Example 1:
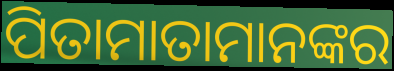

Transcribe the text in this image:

ପିତାମାତାମାନଙ୍କର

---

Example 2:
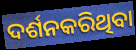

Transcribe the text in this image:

ଦର୍ଶନକରିଥିବା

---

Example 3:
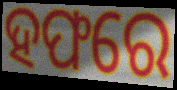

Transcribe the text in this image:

ହଫରେ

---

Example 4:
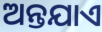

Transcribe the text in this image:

ଅନ୍ତଯାଏ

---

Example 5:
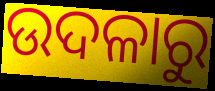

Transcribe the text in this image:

ଉଦଳାରୁ